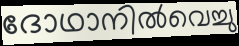
ദോഥാനിൽവെച്ചു